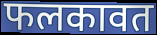
फलकावत